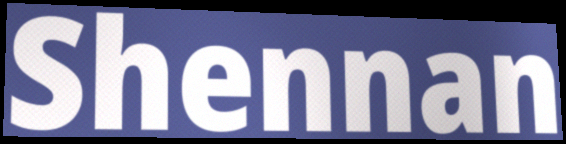
Shennan